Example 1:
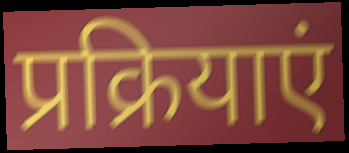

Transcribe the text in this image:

प्रक्रियाएं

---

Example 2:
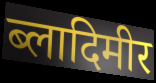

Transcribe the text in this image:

ब्लादिमीर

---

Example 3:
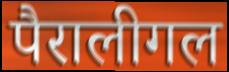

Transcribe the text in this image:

पैरालीगल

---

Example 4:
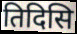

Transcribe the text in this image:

तिदिसि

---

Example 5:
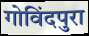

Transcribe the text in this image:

गोविंदपुरा